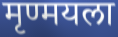
मृण्मयला